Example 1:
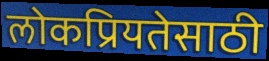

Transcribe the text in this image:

लोकप्रियतेसाठी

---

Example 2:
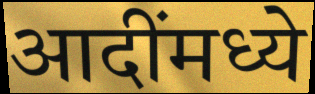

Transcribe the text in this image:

आदींमध्ये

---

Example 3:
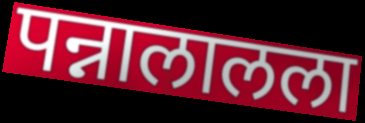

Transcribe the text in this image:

पन्नालालला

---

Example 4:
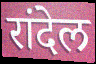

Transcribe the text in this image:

रांदेल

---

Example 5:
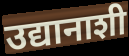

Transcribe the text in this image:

उद्यानाशी